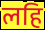
लहि